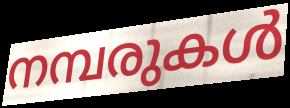
നമ്പരുകൾ